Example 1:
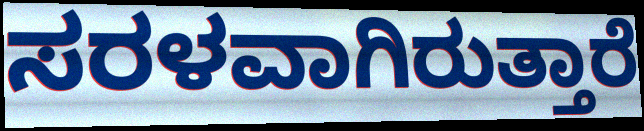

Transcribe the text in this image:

ಸರಳವಾಗಿರುತ್ತಾರೆ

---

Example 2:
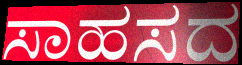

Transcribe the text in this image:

ಸಾಹಸದ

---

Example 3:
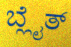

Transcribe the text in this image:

ಬ್ಲೈತ್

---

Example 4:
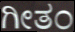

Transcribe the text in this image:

ಗೀತಂ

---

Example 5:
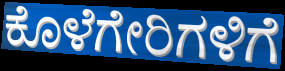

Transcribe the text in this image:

ಕೊಳೆಗೇರಿಗಳಿಗೆ